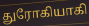
துரோகியாகி